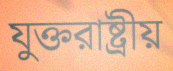
যুক্তরাষ্ট্রীয়